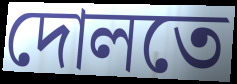
দোলতে